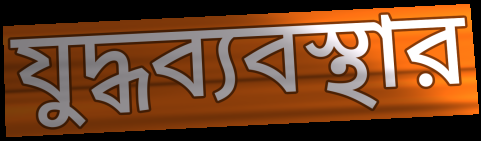
যুদ্ধব্যবস্থার